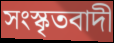
সংস্কৃতবাদী